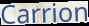
Carrion